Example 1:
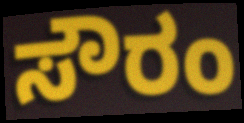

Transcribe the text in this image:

ಸೌರಂ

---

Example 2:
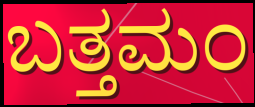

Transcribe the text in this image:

ಬತ್ತಮಂ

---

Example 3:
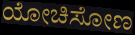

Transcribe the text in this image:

ಯೋಚಿಸೋಣ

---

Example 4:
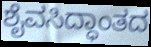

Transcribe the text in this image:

ಶೈವಸಿದ್ಧಾಂತದ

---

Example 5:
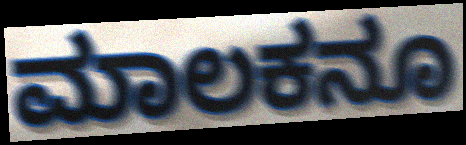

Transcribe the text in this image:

ಮಾಲಕನೂ